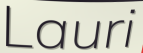
Lauri